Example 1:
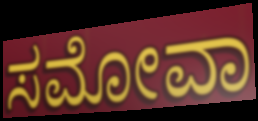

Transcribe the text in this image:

ಸಮೋವಾ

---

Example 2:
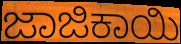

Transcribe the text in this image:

ಜಾಜಿಕಾಯಿ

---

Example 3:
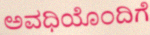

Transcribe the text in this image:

ಅವಧಿಯೊಂದಿಗೆ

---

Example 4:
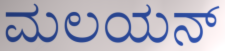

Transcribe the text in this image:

ಮಲಯನ್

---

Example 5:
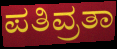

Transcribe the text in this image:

ಪತಿವ್ರತಾ